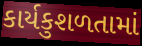
કાર્યકુશળતામાં